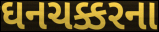
ઘનચક્કરના